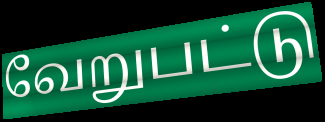
வேறுபட்டு